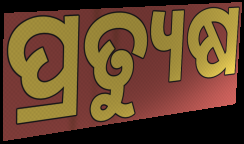
ପ୍ରତ୍ୟୁଷ